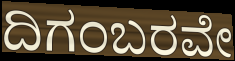
ದಿಗಂಬರವೇ